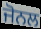
ਜੋਨਲ